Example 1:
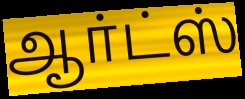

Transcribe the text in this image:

ஆர்ட்ஸ்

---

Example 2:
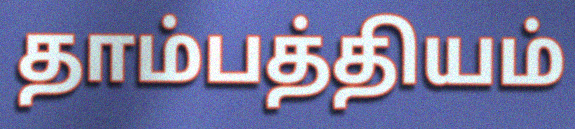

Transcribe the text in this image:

தாம்பத்தியம்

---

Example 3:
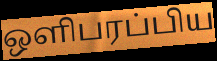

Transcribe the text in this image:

ஒளிபரப்பிய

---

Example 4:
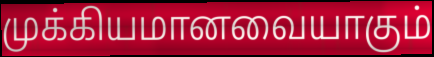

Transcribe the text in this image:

முக்கியமானவையாகும்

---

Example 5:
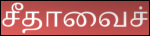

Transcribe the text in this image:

சீதாவைச்